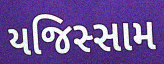
યજિસ્સામ